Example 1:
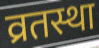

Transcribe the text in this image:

व्रतस्था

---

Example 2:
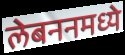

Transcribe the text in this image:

लेबननमध्ये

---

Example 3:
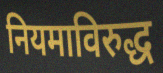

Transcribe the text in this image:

नियमाविरुद्ध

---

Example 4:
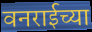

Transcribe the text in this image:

वनराईच्या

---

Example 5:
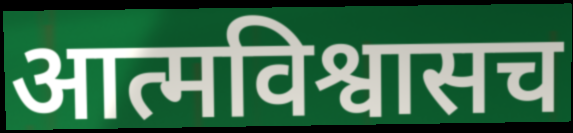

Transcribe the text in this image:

आत्मविश्वासच